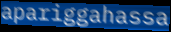
apariggahassa